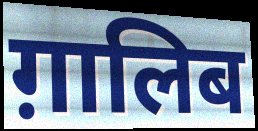
ग़ालिब